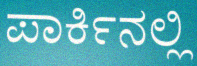
ಪಾರ್ಕಿನಲ್ಲಿ